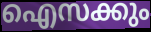
ഐസക്കും